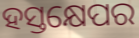
ହସ୍ତକ୍ଷେପର